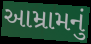
આમ્રામનું